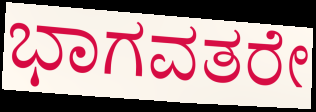
ಭಾಗವತರೇ